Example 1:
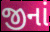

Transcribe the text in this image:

જીનાં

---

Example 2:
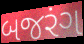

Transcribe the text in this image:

બજરંગ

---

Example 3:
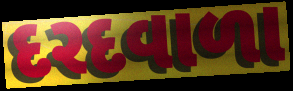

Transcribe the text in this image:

દરદવાળા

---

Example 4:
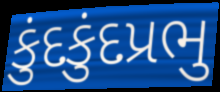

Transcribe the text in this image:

કુંદકુંદપ્રભુ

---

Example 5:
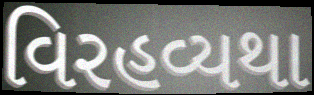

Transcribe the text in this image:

વિરહવ્યથા